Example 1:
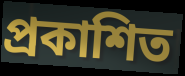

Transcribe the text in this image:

প্রকাশিত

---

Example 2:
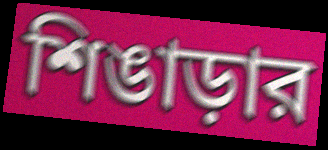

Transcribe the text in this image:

শিঙাড়ার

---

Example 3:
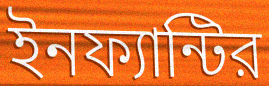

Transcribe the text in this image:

ইনফ্যান্টির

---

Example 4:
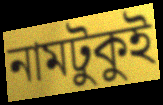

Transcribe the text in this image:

নামটুকুই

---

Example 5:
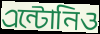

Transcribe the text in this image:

এন্টোনিও